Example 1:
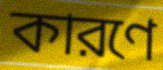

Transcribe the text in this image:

কারণে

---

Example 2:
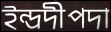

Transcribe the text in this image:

ইন্দ্রদীপদা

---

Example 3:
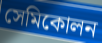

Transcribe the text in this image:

সেমিকোলন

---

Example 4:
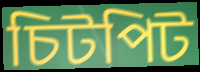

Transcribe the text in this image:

চিটপিট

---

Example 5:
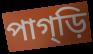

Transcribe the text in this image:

পাগ্ড়ি